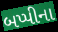
બપ્પીના